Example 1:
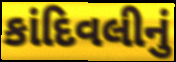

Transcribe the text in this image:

કાંદિવલીનું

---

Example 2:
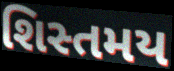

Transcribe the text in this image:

શિસ્તમય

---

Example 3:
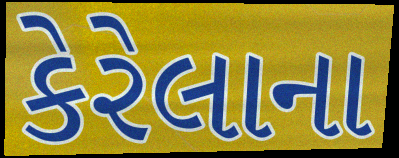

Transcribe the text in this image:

કેરેલાના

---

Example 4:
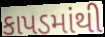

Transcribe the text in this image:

કાપડમાંથી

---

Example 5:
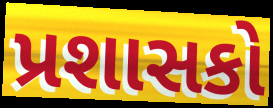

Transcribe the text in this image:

પ્રશાસકો